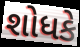
શોધકે